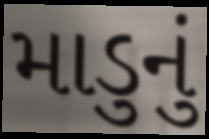
માડુનું